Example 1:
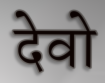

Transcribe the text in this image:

देवो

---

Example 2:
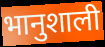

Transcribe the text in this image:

भानुशाली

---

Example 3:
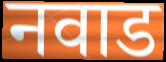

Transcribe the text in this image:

नवाड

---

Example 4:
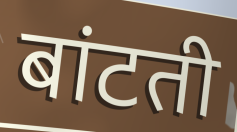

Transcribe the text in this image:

बांटती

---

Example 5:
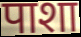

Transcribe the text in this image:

पाशा